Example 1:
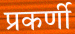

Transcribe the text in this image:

प्रकर्णी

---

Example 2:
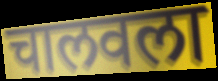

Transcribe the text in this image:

चालवला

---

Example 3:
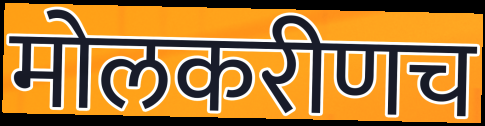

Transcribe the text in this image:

मोलकरीणच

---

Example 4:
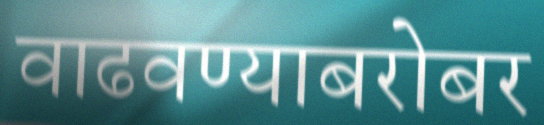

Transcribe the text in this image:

वाढवण्याबरोबर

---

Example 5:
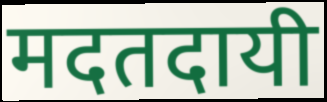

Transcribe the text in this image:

मदतदायी